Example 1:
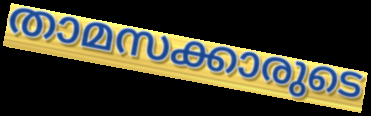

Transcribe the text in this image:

താമസക്കാരുടെ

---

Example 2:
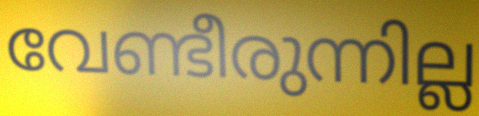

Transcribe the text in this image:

വേണ്ടീരുന്നില്ല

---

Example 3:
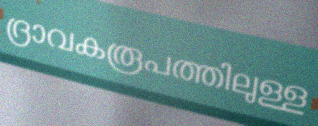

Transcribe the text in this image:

ദ്രാവകരൂപത്തിലുള്ള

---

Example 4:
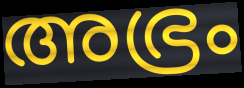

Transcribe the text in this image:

അഭ്രം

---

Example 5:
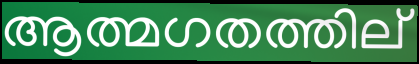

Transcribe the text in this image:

ആത്മഗതത്തില്